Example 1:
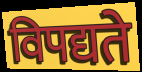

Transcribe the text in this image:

विपद्यते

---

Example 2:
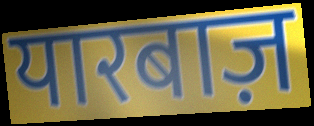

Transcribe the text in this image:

यारबाज़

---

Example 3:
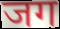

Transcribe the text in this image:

जग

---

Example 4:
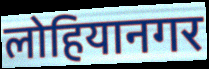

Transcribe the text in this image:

लोहियानगर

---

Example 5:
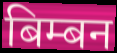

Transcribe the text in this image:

बिम्बन